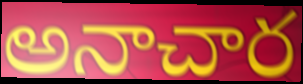
అనాచార